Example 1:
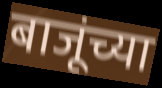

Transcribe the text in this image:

बाजूंच्या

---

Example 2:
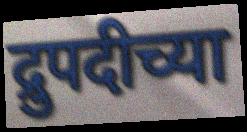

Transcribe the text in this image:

द्रुपदीच्या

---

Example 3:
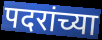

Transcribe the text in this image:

पदरांच्या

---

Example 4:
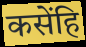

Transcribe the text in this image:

कसेंहि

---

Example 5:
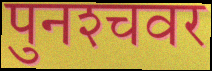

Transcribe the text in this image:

पुनश्चवर